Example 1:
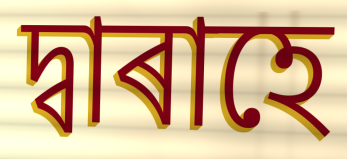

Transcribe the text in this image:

দ্বাৰাহে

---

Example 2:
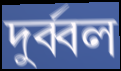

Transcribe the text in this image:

দুৰ্ব্বল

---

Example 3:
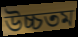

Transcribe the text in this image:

উচ্চতম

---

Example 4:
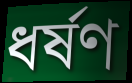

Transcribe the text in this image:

ধৰ্ষণ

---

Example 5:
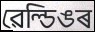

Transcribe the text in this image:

ৱেল্ডিঙৰ